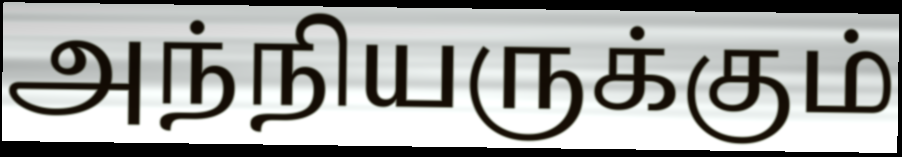
அந்நியருக்கும்